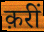
क़रीं